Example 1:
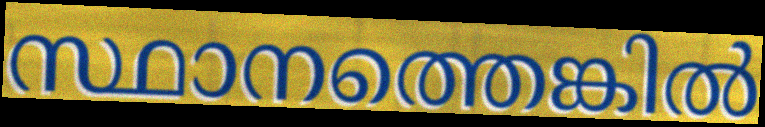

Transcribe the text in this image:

സ്ഥാനത്തെങ്കിൽ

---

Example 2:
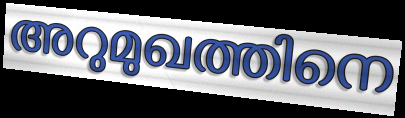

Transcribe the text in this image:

അറുമുഖത്തിനെ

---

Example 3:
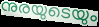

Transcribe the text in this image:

നുരയുടെയും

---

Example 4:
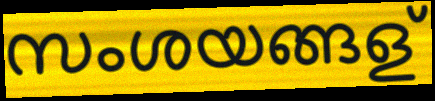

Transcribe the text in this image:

സംശയങ്ങള്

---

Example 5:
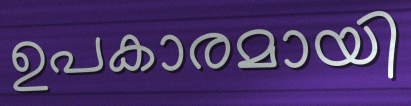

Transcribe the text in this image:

ഉപകാരമായി